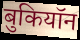
बुकियॉन